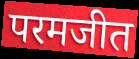
परमजीत